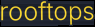
rooftops